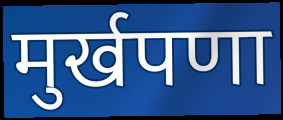
मुर्खपणा